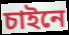
চাইনে